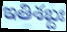
ఇతిశబ్దః